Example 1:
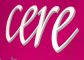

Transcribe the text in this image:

cere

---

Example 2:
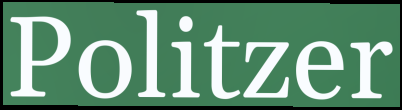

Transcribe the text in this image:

Politzer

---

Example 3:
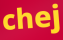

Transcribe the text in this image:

chej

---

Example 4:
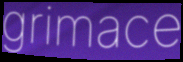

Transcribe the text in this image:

grimace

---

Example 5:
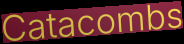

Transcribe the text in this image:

Catacombs